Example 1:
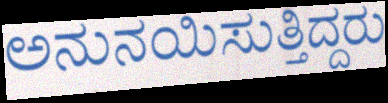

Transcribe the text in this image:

ಅನುನಯಿಸುತ್ತಿದ್ದರು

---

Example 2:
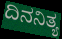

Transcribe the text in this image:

ದಿನನಿತ್ಯ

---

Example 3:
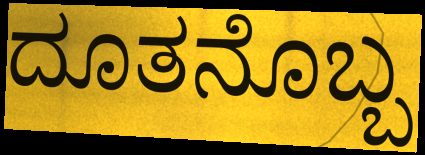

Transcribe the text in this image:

ದೂತನೊಬ್ಬ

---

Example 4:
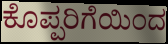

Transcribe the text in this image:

ಕೊಪ್ಪರಿಗೆಯಿಂದ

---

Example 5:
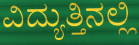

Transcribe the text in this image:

ವಿದ್ಯುತ್ತಿನಲ್ಲಿ